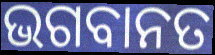
ଭଗବାନତ